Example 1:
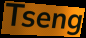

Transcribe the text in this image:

Tseng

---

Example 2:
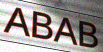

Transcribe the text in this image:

ABAB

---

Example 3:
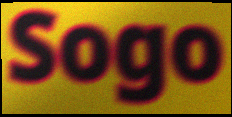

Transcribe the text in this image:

Sogo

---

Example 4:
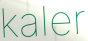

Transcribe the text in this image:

kaler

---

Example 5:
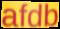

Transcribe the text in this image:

afdb